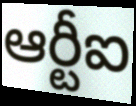
ఆర్టీఐ